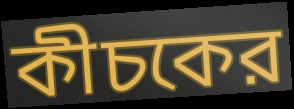
কীচকের